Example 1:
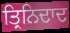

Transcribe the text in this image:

ਤ੍ਰਿਨਿਦਾਦ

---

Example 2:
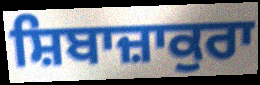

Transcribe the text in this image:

ਸ਼ਿਬਾਜ਼ਾਕੁਰਾ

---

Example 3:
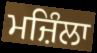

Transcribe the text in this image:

ਮਜ਼ਿੰਲਾ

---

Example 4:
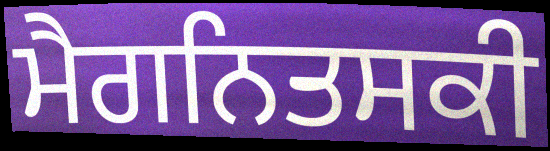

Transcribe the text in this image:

ਮੈਗਨਿਤਸਕੀ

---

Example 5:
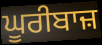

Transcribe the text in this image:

ਘੂਰੀਬਾਜ਼